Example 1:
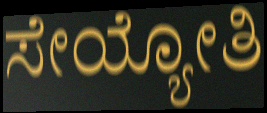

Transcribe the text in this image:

ಸೇಯ್ಯೋತಿ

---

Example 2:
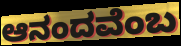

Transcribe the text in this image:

ಆನಂದವೆಂಬ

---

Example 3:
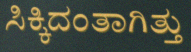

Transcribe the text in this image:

ಸಿಕ್ಕಿದಂತಾಗಿತ್ತು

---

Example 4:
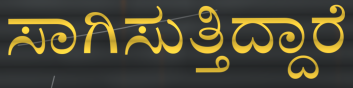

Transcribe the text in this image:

ಸಾಗಿಸುತ್ತಿದ್ದಾರೆ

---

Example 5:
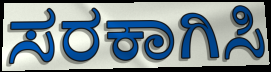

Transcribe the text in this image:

ಸರಕಾಗಿಸಿ